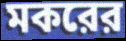
মকরের